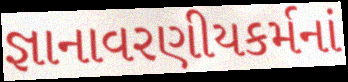
જ્ઞાનાવરણીયકર્મનાં